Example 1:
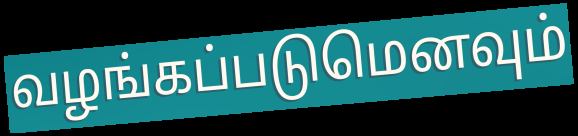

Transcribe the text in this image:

வழங்கப்படுமெனவும்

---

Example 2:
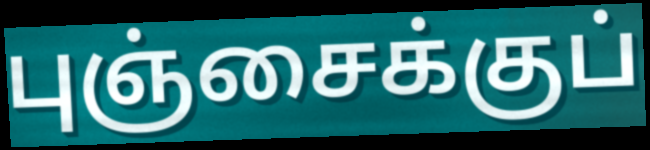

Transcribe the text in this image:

புஞ்சைக்குப்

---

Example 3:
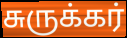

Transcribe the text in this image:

சுருக்கர்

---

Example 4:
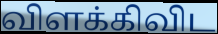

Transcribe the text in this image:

விளக்கிவிட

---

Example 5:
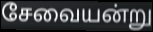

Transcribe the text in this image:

சேவையன்று